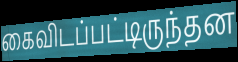
கைவிடப்பட்டிருந்தன